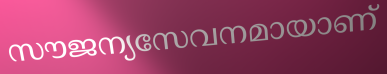
സൗജന്യസേവനമായാണ്